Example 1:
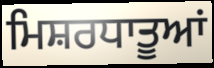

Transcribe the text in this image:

ਮਿਸ਼ਰਧਾਤੂਆਂ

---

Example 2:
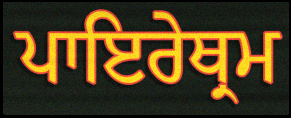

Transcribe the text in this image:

ਪਾਇਰੇਥ੍ਰਮ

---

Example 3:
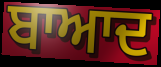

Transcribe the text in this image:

ਬਾਆਦ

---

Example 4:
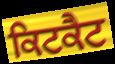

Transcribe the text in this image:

ਕਿਟਕੈਟ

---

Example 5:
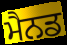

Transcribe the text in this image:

ਮੈਨਡ